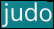
judo